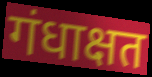
गंधाक्षत